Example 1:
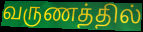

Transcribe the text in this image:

வருணத்தில்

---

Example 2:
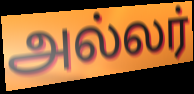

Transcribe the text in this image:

அல்லர்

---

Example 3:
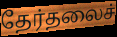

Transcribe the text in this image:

தேர்தலைச்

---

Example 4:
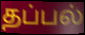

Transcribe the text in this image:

தப்பல்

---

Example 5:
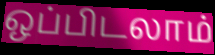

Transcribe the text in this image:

ஒப்பிடலாம்